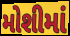
મોશીમાં